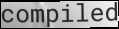
compiled